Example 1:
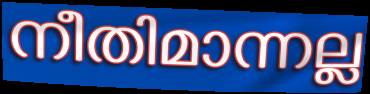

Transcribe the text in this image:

നീതിമാന്നല്ല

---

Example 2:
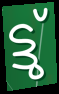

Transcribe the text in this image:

ട്ടു്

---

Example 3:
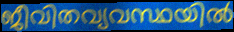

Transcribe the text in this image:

ജീവിതവ്യവസ്ഥയിൽ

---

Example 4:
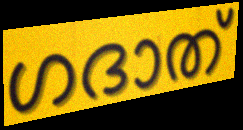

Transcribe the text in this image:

ഗദാത്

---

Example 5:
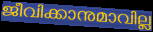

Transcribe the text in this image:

ജീവിക്കാനുമാവില്ല